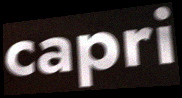
capri